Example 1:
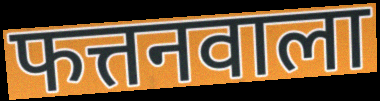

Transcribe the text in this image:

फत्तनवाला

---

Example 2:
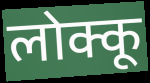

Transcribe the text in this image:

लोक्कू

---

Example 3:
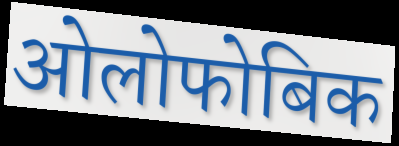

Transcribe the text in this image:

ओलोफोबिक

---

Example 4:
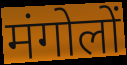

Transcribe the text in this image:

मंगोलों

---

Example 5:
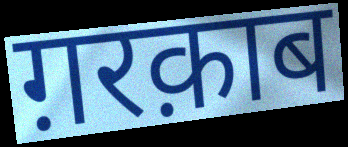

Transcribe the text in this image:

ग़रक़ाब